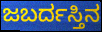
ಜಬರ್ದಸ್ತಿನ